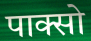
पाक्सो